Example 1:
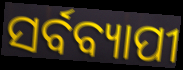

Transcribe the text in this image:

ସର୍ବବ୍ୟାପୀ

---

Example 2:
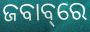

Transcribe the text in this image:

ଜବାବ୍‌ରେ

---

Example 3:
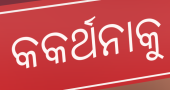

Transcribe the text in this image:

କକର୍ଥନାକୁ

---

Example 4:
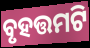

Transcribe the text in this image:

ବୃହତ୍ତମଟି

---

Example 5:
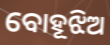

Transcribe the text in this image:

ବୋହୂଝିଅ